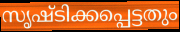
സൃഷ്ടിക്കപ്പെട്ടതും